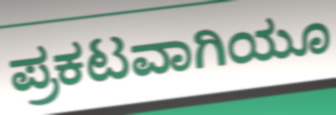
ಪ್ರಕಟವಾಗಿಯೂ